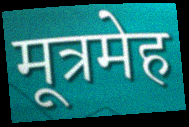
मूत्रमेह